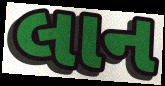
લાન